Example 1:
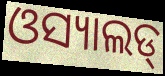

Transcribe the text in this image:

ଓସ୍ୟାଲଡ୍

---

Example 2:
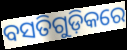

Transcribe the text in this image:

ବସତିଗୁଡ଼ିକରେ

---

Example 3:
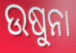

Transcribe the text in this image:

ଉଷୁନା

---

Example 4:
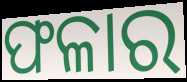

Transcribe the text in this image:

ଫଳାର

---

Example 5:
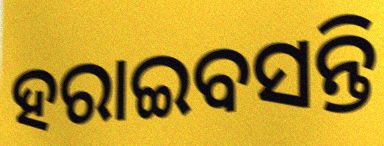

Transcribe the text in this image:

ହରାଇବସନ୍ତି